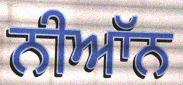
ਨੀਆੱਨ